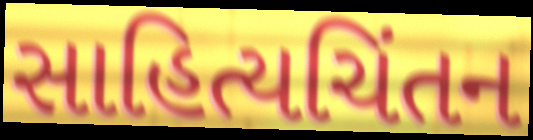
સાહિત્યચિંતન